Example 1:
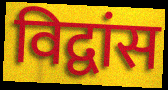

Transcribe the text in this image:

विद्वांस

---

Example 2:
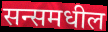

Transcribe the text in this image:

सन्समधील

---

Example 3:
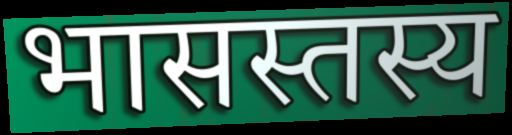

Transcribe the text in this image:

भासस्तस्य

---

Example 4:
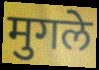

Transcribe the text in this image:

मुगले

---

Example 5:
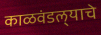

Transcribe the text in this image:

काळवंडल्याचे